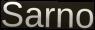
Sarno